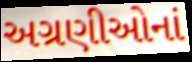
અગ્રણીઓનાં